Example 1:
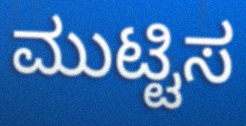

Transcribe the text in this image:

ಮುಟ್ಟಿಸ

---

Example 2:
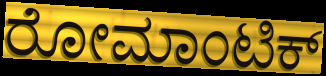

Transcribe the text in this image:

ರೋಮಾಂಟಿಕ್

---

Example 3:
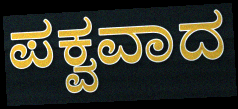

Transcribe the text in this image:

ಪಕ್ವವಾದ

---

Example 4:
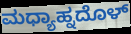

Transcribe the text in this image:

ಮಧ್ಯಾಹ್ನದೊಳ್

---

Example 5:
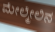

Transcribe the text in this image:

ಮೇಲ್ಮೇಲಿನ